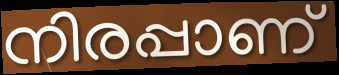
നിരപ്പാണ്